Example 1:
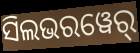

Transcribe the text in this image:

ସିଲଭରୱେର୍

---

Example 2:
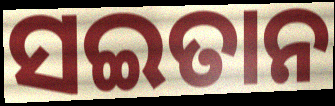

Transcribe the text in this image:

ସଇତାନ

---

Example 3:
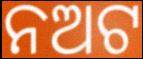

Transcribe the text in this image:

ନଅଟ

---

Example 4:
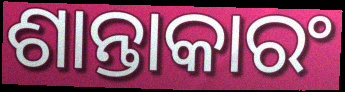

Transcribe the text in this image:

ଶାନ୍ତାକାରଂ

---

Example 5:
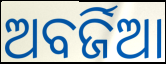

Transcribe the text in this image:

ଅବର୍ଜିଆ